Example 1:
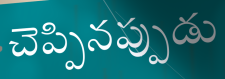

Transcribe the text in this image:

చెప్పినప్పుడు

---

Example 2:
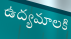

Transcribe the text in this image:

ఉద్యమాలకి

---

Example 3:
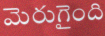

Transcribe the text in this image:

మెరుగైంది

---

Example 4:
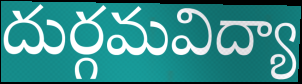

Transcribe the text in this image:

దుర్గమవిద్యా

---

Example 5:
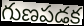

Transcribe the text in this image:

గుణపడక